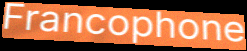
Francophone